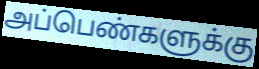
அப்பெண்களுக்கு